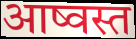
आष्वस्त